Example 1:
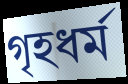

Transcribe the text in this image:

গৃহধর্ম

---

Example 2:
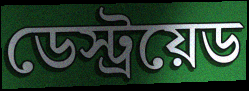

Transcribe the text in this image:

ডেস্ট্রয়েড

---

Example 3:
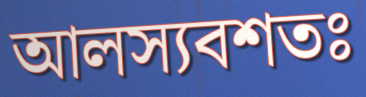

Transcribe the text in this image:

আলস্যবশতঃ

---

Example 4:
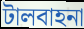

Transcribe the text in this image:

টালবাহনা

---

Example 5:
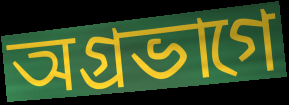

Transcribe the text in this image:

অগ্রভাগে